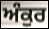
ਅੰਕੁਰ